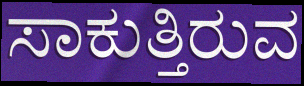
ಸಾಕುತ್ತಿರುವ